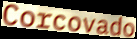
Corcovado